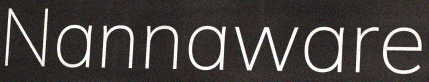
Nannaware